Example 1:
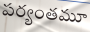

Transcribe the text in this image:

పర్యంతమూ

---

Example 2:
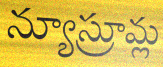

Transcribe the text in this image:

న్యూస్రూమ్ల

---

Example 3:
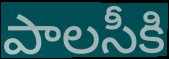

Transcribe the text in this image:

పాలసీకి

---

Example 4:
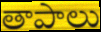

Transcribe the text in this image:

తాపాలు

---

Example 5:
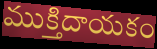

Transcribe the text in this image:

ముక్తిదాయకం